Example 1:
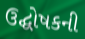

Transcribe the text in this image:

ઉદ્ઘોષકની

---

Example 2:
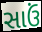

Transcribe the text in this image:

સાઉં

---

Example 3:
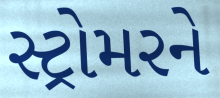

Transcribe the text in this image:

સ્ટ્રોમરને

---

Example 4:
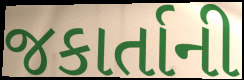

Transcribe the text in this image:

જકાર્તાની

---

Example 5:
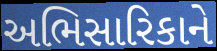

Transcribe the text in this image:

અભિસારિકાને